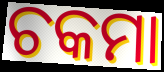
ଚକମା